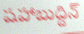
షహాబుద్దిన్